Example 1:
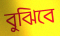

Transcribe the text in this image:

বুঝিবে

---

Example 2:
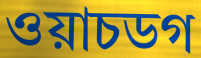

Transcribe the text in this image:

ওয়াচডগ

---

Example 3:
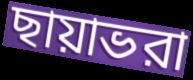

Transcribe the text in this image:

ছায়াভরা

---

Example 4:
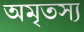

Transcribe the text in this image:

অমৃতস্য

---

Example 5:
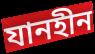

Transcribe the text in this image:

যানহীন